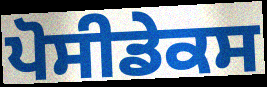
ਪੋਸੀਡੇਕਸ